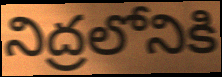
నిద్రలోనికి